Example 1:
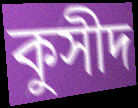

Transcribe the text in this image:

কুসীদ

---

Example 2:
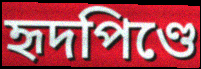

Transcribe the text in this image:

হৃদপিণ্ডে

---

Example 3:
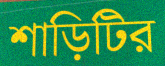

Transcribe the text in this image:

শাড়িটির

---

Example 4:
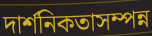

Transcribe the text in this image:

দার্শনিকতাসম্পন্ন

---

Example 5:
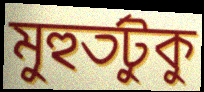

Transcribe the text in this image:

মুহুর্তটুকু